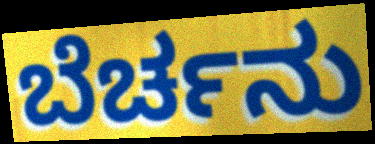
ಬೆರ್ಚನು